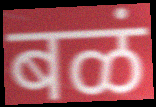
बळं